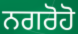
ਨਗਰੋਹੋ